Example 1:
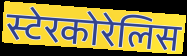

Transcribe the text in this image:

स्टेरकोरेलिस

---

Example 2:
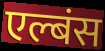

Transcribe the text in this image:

एल्बंस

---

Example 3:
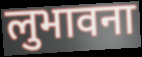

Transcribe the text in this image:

लुभावना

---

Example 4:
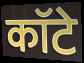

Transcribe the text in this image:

कॉटे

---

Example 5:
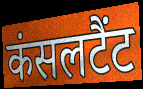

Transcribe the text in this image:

कंसलटैंट